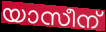
യാസീന്